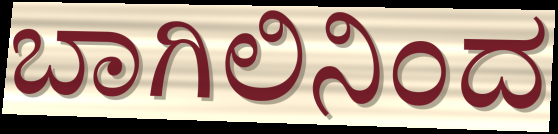
ಬಾಗಿಲಿನಿಂದ